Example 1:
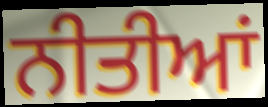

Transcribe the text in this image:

ਨੀਤੀਆਂ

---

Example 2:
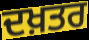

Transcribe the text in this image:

ਦਖ਼ਤਰ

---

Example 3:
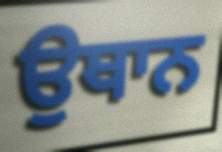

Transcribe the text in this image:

ਉਥਾਨ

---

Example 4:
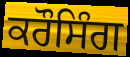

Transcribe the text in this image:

ਕਰੌਸਿੰਗ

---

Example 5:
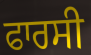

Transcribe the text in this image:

ਫਾਰਸੀ